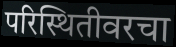
परिस्थितीवरचा